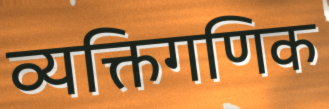
व्यक्तिगणिक